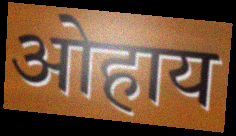
ओहाय